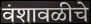
वंशावळीचे